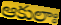
ఆకులాః